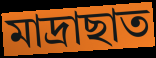
মাদ্ৰাছাত